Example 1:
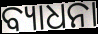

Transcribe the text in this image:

ବ୍ୟାଧନା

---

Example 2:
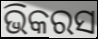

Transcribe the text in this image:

ଭିକରସ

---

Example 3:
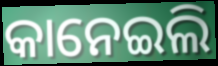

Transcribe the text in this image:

କାନେଇଲି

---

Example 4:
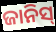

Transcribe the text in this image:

ଜାନିସ୍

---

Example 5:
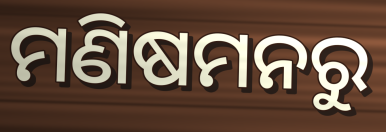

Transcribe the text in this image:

ମଣିଷମନରୁ